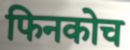
फिनकोच